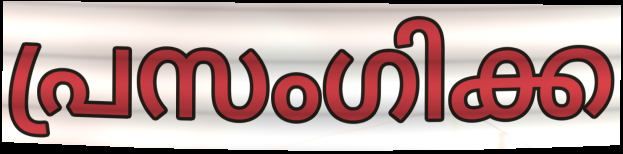
പ്രസംഗിക്ക